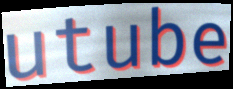
utube